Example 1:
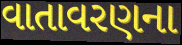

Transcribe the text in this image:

વાતાવરણના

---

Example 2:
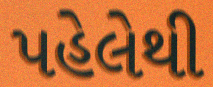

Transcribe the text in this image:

પહેલેથી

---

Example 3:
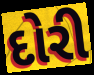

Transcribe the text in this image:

દોરી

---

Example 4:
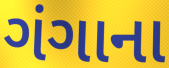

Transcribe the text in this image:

ગંગાના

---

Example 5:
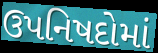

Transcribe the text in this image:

ઉપનિષદોમાં